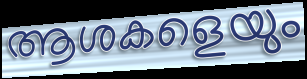
ആശകളെയും